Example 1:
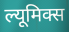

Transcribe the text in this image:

ल्यूमिक्स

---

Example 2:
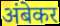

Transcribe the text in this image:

अंबेकर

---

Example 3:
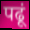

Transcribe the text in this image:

पढूं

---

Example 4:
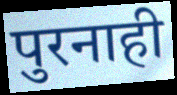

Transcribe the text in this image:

पुरनाही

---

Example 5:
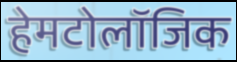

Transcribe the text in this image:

हेमटोलॉजिक